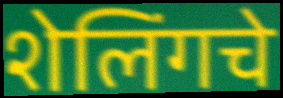
शेलिंगचे